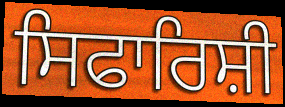
ਸਿਫਾਰਿਸ਼ੀ